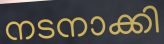
നടനാക്കി